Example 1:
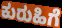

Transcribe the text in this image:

ಕುರುಹಿಗೆ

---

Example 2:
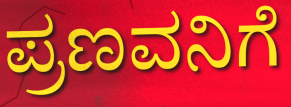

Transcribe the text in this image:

ಪ್ರಣವನಿಗೆ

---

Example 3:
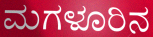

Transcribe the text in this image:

ಮಗಳೂರಿನ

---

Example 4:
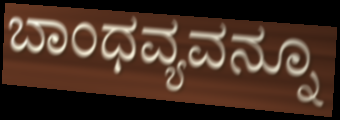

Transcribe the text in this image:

ಬಾಂಧವ್ಯವನ್ನೂ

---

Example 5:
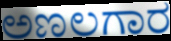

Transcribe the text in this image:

ಅಣಲಗಾರ